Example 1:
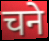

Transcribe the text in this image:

चने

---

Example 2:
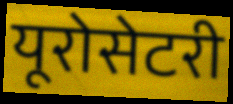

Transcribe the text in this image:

यूरोसेटरी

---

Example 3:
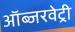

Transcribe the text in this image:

ऑब्जरवेट्री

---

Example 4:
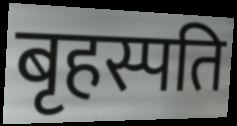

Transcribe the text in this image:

बृहस्‍पति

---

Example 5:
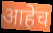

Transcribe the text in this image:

आहेच